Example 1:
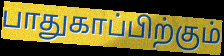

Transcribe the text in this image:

பாதுகாப்பிற்கும்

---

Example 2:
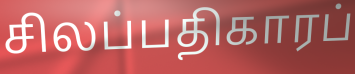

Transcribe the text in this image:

சிலப்பதிகாரப்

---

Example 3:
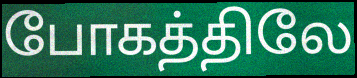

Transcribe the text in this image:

போகத்திலே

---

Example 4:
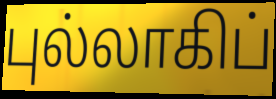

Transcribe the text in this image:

புல்லாகிப்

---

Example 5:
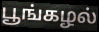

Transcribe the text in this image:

பூங்கழல்